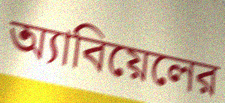
অ্যাবিয়েলের